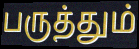
பருத்தும்